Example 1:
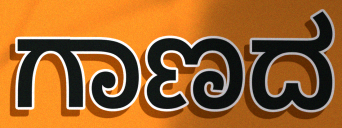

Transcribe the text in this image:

ಗಾಣದ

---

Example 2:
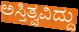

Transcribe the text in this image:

ಅಸ್ತಿತ್ವವಿದ್ದು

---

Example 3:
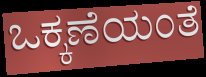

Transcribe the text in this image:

ಒಕ್ಕಣೆಯಂತೆ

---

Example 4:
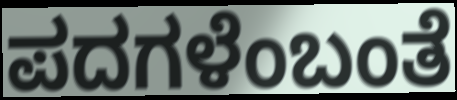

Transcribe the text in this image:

ಪದಗಳೆಂಬಂತೆ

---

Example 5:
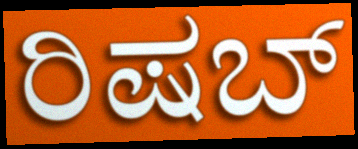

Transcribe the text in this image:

ರಿಷಬ್